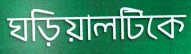
ঘড়িয়ালটিকে